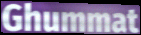
Ghummat